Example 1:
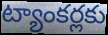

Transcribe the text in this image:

ట్యాంకర్లకు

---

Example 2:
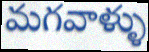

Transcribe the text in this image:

మగవాళ్ళు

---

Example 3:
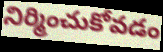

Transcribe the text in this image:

నిర్మించుకోవడం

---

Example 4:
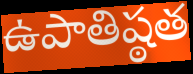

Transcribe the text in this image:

ఉపాతిష్ఠత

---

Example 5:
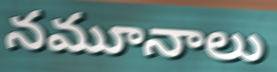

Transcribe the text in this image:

నమూనాలు